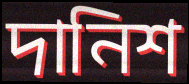
দানিশ